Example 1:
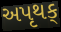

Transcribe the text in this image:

અપૃથક્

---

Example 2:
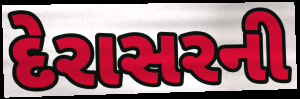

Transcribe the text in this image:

દેરાસરની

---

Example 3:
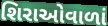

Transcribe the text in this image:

શિરાઓવાળાં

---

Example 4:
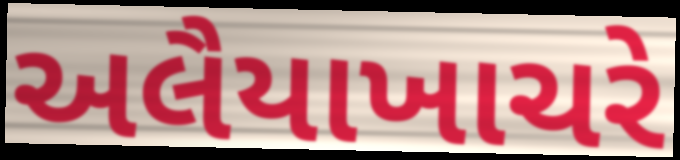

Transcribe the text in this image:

અલૈયાખાચરે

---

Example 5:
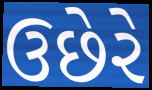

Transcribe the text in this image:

ઉછેરે